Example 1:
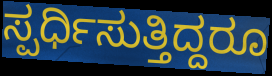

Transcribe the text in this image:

ಸ್ಪರ್ಧಿಸುತ್ತಿದ್ದರೂ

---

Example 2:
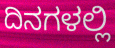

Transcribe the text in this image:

ದಿನಗಳಲ್ಲಿ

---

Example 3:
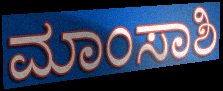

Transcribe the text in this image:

ಮಾಂಸಾಶಿ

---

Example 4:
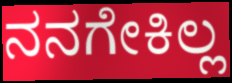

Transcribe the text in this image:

ನನಗೇಕಿಲ್ಲ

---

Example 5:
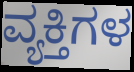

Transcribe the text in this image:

ವ್ಯಕ್ತಿಗಳ